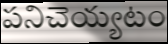
పనిచెయ్యటం